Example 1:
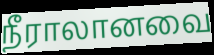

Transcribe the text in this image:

நீராலானவை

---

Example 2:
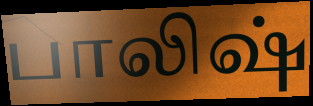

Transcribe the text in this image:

பாலிஷ்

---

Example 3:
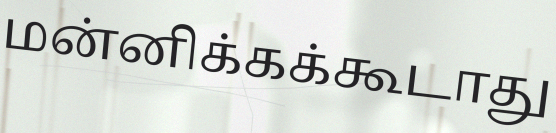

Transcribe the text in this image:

மன்னிக்கக்கூடாது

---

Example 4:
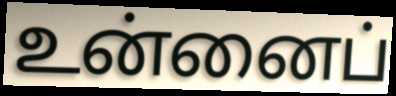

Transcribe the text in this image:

உன்னைப்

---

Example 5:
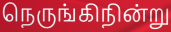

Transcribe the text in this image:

நெருங்கிநின்று